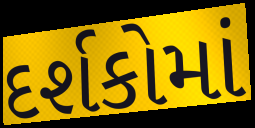
દર્શકોમાં